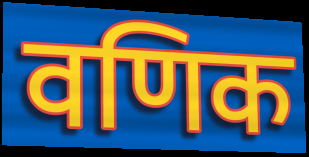
वणिक